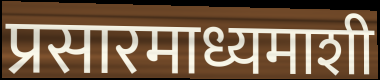
प्रसारमाध्यमाशी